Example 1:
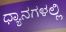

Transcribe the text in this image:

ಧ್ಯಾನಗಳಲ್ಲಿ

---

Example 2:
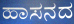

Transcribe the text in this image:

ಹಾಸನದ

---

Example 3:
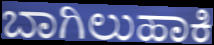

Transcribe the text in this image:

ಬಾಗಿಲುಹಾಕಿ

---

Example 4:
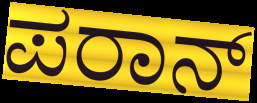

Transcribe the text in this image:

ಪರಾನ್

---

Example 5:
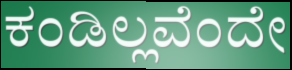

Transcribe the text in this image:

ಕಂಡಿಲ್ಲವೆಂದೇ